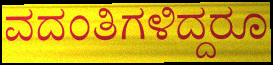
ವದಂತಿಗಳಿದ್ದರೂ